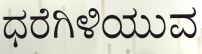
ಧರೆಗಿಳಿಯುವ